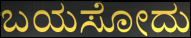
ಬಯಸೋದು